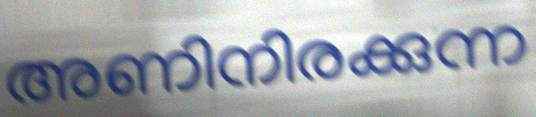
അണിനിരക്കുന്ന